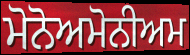
ਮੋਨੋਅਮੋਨੀਅਮ